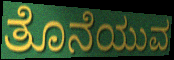
ತೊನೆಯುವ